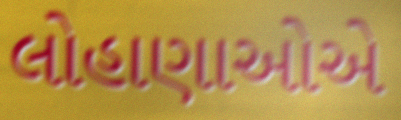
લોહાણાઓએ